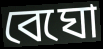
বেঘো